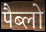
पैब्लो